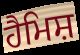
ਹੈਮਿਸ਼